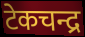
टेकचन्द्र